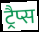
ट्रैप्स